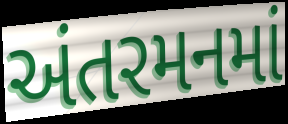
અંતરમનમાં